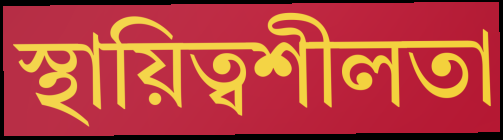
স্থায়িত্বশীলতা